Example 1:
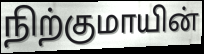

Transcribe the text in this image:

நிற்குமாயின்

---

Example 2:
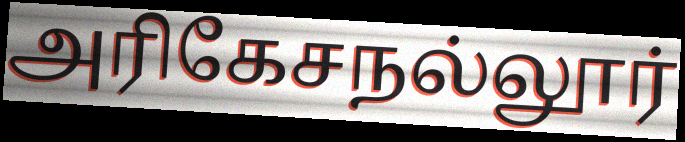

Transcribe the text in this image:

அரிகேசநல்லூர்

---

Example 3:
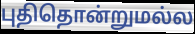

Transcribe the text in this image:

புதிதொன்றுமல்ல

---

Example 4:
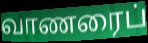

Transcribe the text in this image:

வாணரைப்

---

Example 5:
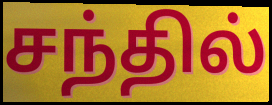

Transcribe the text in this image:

சந்தில்